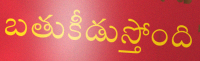
బతుకీడుస్తోంది